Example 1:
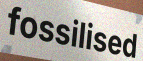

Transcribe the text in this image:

fossilised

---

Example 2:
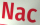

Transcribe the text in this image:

Nac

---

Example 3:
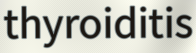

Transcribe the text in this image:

thyroiditis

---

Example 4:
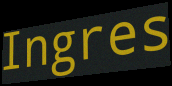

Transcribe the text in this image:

Ingres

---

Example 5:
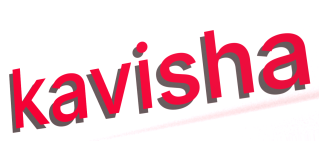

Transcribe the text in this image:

kavisha